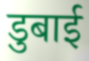
डुबाई